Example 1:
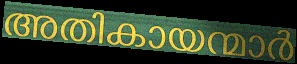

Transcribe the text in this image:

അതികായന്മാർ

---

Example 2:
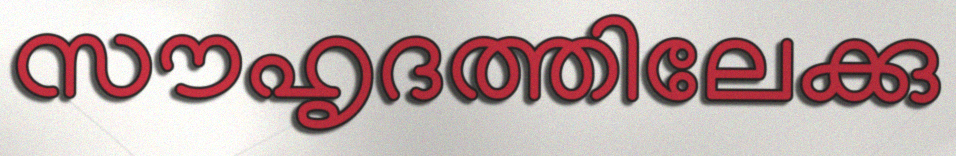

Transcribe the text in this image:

സൗഹൃദത്തിലേക്കു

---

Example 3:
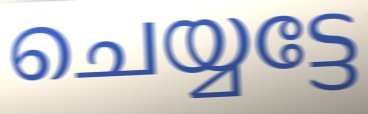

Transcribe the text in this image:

ചെയ്യട്ടേ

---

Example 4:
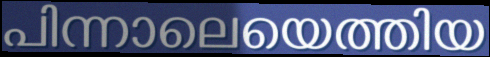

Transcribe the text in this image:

പിന്നാലെയെത്തിയ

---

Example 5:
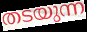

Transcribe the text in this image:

തടയുന്ന